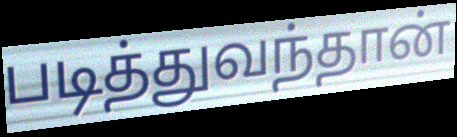
படித்துவந்தான்